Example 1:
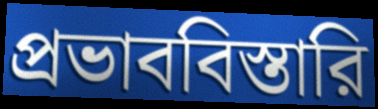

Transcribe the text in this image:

প্রভাববিস্তারি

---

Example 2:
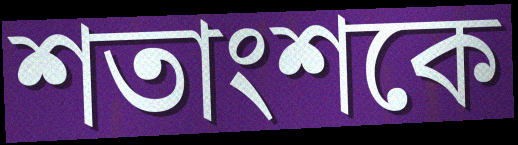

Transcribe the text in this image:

শতাংশকে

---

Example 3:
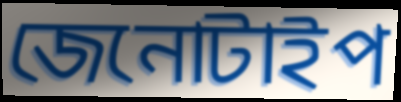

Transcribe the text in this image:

জেনোটাইপ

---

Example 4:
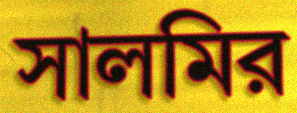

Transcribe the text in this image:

সালমির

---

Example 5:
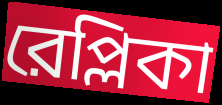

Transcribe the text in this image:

রেপ্লিকা